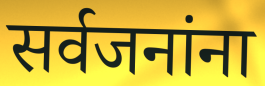
सर्वजनांना